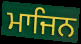
ਮਾਜਿਨ